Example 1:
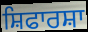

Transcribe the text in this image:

ਸ਼ਿਫਾਰਸ਼ਾ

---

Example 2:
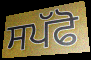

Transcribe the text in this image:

ਸਪੱਫੋ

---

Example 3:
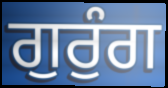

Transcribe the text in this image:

ਗੁਰੁੰਗ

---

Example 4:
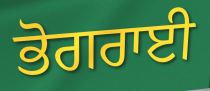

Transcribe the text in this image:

ਭੋਗਰਾਈ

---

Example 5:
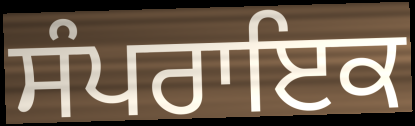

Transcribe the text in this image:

ਸੰਪਰਾਇਕ